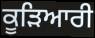
ਕੂੜਿਆਰੀ